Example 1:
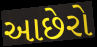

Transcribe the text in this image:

આછેરો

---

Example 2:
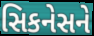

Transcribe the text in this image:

સિકનેસને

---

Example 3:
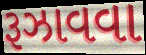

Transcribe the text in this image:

રૂઝાવવા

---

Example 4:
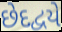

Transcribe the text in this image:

છેદદ્વયે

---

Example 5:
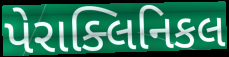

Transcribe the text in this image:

પેરાક્લિનિકલ